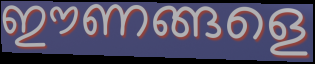
ഈണങ്ങളെ